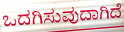
ಒದಗಿಸುವುದಾಗಿದೆ